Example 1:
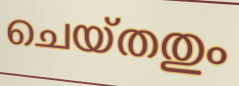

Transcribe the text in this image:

ചെയ്‌തതും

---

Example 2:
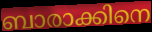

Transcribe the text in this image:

ബാരാക്കിനെ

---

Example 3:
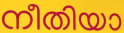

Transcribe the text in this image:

നീതിയാ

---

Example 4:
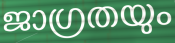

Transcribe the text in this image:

ജാഗ്രതയും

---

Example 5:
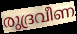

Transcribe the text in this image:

രുദ്രവീണ